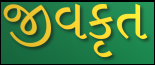
જીવકૃત